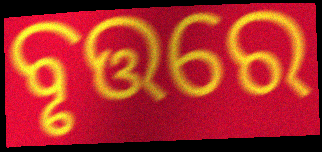
ବୃତ୍ତରେ